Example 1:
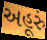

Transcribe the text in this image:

અહૂરું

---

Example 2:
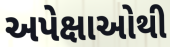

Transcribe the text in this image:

અપેક્ષાઓથી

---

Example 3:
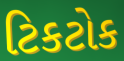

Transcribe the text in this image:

ટિકટોક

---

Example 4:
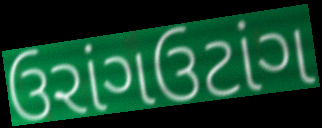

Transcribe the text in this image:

ઉરાંગઉટાંગ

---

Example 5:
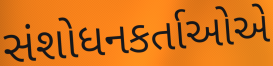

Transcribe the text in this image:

સંશોધનકર્તાઓએ